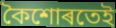
কৈশোৰতেই